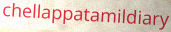
chellappatamildiary